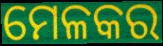
ମେଳକର